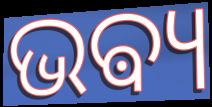
ଭଵ୍ୟ